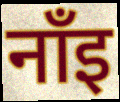
नाँइ